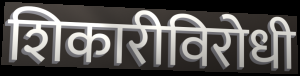
शिकारीविरोधी